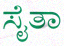
ಸೈತಾ